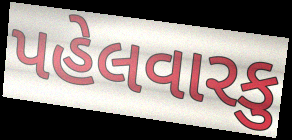
પહેલવારકુ